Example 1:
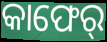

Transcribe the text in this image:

କାଫେର୍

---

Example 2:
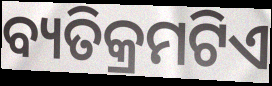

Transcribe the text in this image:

ବ୍ୟତିକ୍ରମଟିଏ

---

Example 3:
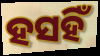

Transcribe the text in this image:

ହସହିଁ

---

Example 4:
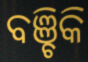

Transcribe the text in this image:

ବଞ୍ଚିକି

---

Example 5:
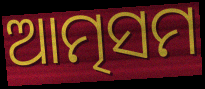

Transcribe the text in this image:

ଆତ୍ମସମ